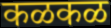
कळकळ